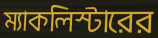
ম্যাকলিস্টারের